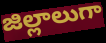
జిల్లాలుగా